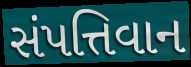
સંપત્તિવાન